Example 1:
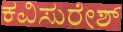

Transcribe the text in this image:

ಕವಿಸುರೇಶ್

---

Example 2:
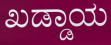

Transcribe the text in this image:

ಖಡ್ಡಾಯ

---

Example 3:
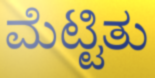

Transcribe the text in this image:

ಮೆಟ್ಟಿತು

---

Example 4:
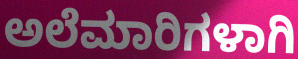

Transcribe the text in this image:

ಅಲೆಮಾರಿಗಳಾಗಿ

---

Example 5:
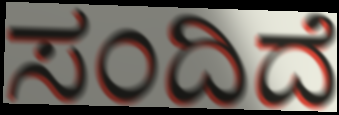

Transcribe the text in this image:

ಸಂದಿದೆ